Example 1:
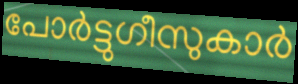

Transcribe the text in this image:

പോർട്ടുഗീസുകാർ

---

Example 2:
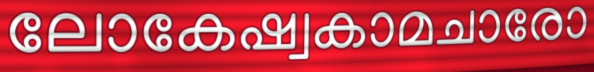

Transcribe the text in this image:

ലോകേഷ്വകാമചാരോ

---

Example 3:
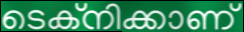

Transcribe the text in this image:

ടെക്നിക്കാണ്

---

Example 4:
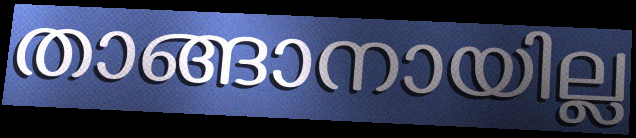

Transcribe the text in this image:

താങ്ങാനായില്ല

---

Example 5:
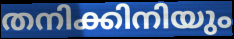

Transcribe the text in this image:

തനിക്കിനിയും